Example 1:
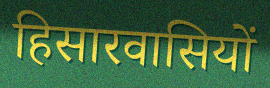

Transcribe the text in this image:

हिसारवासियों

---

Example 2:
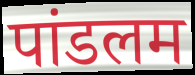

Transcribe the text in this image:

पांडलम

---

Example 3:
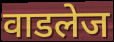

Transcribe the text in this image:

वाडलेज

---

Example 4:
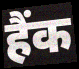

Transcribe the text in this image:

हैंक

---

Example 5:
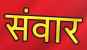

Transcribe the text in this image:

संवार